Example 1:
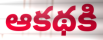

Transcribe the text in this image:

ఆకథకి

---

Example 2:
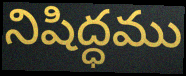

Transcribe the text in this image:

నిషిద్ధము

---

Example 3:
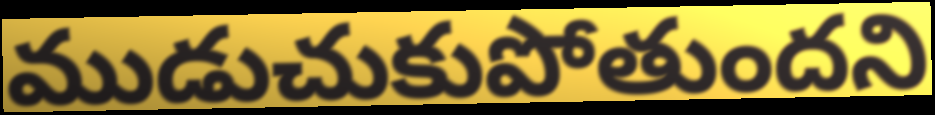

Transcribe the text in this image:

ముడుచుకుపోతుందని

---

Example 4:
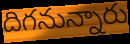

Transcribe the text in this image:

దిగనున్నారు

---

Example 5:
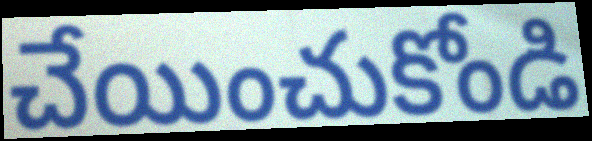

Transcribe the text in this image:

చేయించుకోండి